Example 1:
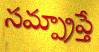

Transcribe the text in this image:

సమ్ప్రాప్తే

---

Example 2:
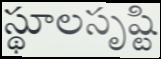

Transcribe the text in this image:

స్థూలసృష్టి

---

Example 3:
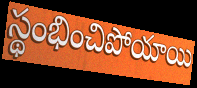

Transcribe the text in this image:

స్థంభించిపోయాయి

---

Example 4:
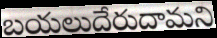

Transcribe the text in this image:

బయలుదేరుదామని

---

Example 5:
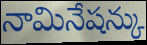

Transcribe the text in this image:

నామినేషన్కు